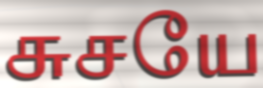
சுசயே